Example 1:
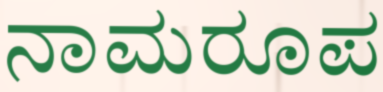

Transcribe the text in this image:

ನಾಮರೂಪ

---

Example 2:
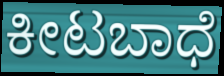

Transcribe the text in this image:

ಕೀಟಬಾಧೆ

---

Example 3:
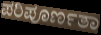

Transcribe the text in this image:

ಪರಿಪೂರ್ಣತಾ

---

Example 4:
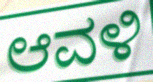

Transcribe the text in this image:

ಆವಳಿ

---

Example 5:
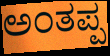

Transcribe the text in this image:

ಅಂತಪ್ಪ